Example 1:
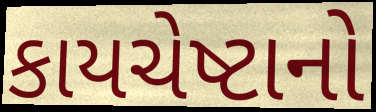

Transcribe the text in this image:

કાયચેષ્ટાનો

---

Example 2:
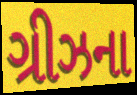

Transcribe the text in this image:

ગ્રીઝના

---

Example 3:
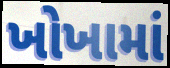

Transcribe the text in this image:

ખોખામાં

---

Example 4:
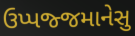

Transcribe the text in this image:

ઉપ્પજ્જમાનેસુ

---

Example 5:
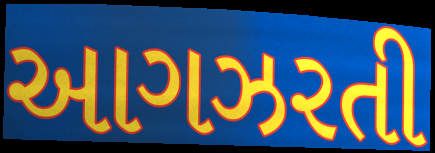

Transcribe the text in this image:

આગઝરતી